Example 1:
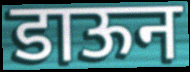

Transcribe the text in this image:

डाऊन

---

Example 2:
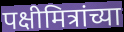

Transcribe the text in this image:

पक्षीमित्रांच्या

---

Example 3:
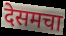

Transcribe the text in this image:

देसमचा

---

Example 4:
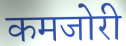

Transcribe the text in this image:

कमजोरी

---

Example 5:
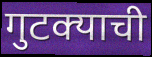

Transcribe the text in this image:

गुटक्याची